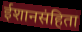
ईशानसंहिता